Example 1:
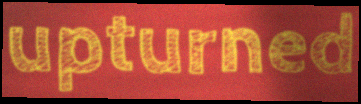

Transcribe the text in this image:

upturned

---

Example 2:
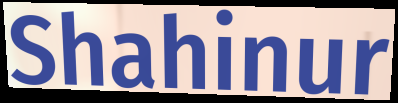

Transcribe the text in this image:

Shahinur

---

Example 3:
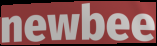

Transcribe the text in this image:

newbee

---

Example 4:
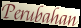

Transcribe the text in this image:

Perubahan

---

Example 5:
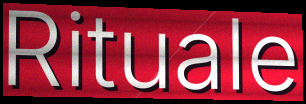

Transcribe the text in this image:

Rituale